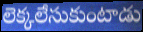
లెక్కలేసుకుంటాడు